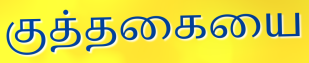
குத்தகையை